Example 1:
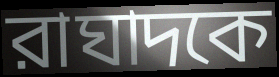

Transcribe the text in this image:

রাঘাদকে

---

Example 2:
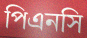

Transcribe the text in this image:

পিএনসি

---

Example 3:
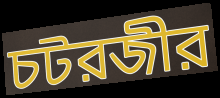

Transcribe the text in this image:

চটরজীর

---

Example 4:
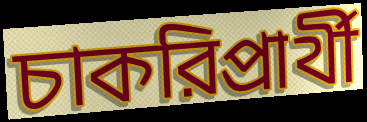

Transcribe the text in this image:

চাকরিপ্রার্থী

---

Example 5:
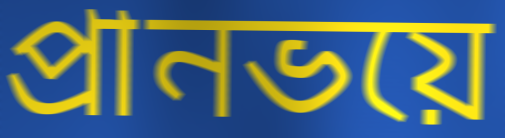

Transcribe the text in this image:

প্রানভয়ে